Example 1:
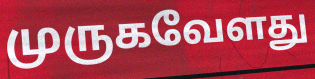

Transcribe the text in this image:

முருகவேளது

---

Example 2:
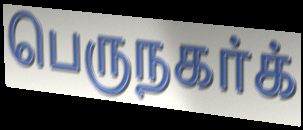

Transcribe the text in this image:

பெருநகர்க்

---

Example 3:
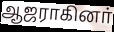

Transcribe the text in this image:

ஆஜராகினர்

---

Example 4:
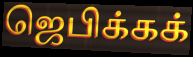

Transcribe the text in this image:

ஜெபிக்கக்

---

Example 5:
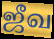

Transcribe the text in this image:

ஜீவ